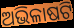
ଅଭିଳାଷଟି